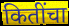
कितींचा